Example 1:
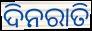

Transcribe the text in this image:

ଦିନରାତି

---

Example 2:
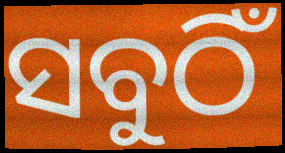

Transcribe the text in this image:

ସବୁଠିଁ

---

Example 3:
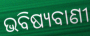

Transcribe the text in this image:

ଭବିଷ୍ୟବାଣୀ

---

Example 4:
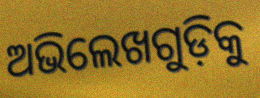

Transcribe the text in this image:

ଅଭିଲେଖଗୁଡ଼ିକୁ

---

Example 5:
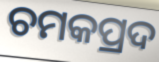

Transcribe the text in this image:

ଚମକପ୍ରଦ